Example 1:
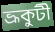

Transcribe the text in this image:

ভ্রূকুটী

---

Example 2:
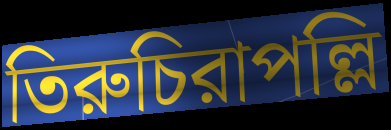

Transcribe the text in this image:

তিরুচিরাপল্লি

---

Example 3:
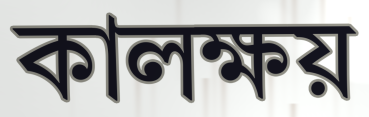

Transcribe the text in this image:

কালক্ষয়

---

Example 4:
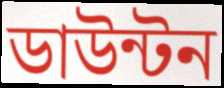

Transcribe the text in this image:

ডাউন্টন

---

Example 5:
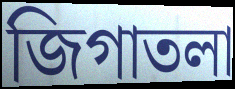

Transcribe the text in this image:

জিগাতলা